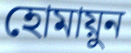
হোমায়ুন